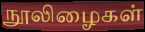
நூலிழைகள்